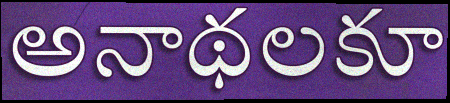
అనాథలకూ